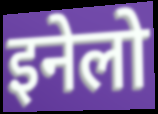
इनेलो